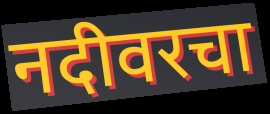
नदीवरचा